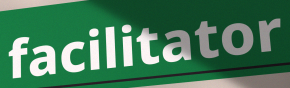
facilitator